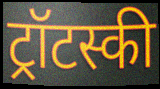
ट्रॉटस्की